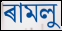
ৰামলু